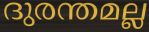
ദുരന്തമല്ല